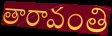
తారావంతి